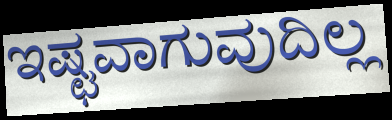
ಇಷ್ಟವಾಗುವುದಿಲ್ಲ